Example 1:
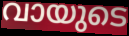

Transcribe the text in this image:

വായുടെ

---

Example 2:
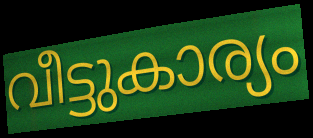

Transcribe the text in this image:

വീട്ടുകാര്യം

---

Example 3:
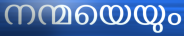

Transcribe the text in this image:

നന്മയെയും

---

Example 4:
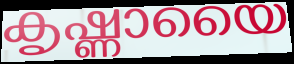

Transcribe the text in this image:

കൃഷ്ണായൈ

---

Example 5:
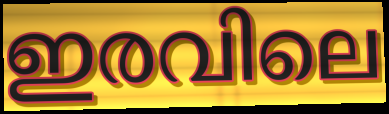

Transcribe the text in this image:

ഇരവിലെ